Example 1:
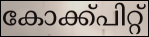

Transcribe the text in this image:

കോക്ക്പിറ്റ്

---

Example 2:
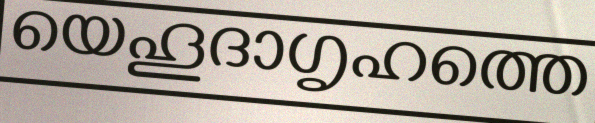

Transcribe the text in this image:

യെഹൂദാഗൃഹത്തെ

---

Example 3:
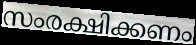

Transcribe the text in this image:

സംരക്ഷിക്കണം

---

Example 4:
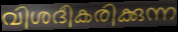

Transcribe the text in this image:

വിശദീകരിക്കുന്ന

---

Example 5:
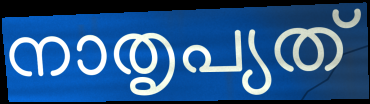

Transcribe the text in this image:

നാതൃപ്യത്